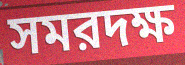
সমরদক্ষ